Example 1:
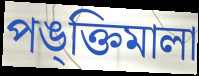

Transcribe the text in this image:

পঙ্‌ক্তিমালা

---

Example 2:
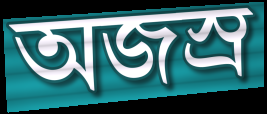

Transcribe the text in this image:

অজস্র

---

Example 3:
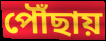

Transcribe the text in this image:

পৌঁছায়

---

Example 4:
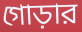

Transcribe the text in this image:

গোড়ার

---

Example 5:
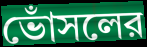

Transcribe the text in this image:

ভোঁসলের